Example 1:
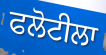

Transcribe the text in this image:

ਫਲੋਟੀਲਾ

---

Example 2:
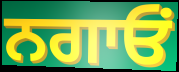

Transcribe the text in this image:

ਨਗਾਓਂ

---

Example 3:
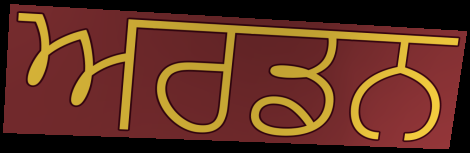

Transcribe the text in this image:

ਅਰਡਨ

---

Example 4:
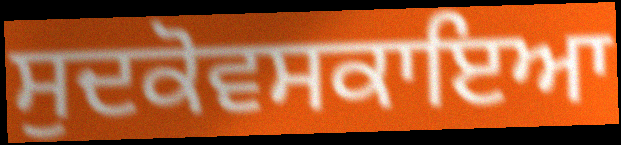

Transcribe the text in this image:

ਸੁਦਕੋਵਸਕਾਇਆ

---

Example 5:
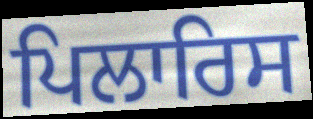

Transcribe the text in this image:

ਪਿਲਾਰਿਸ